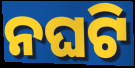
ନଘଟି